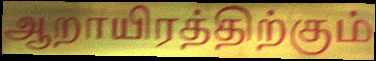
ஆறாயிரத்திற்கும்